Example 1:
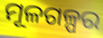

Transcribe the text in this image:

ମୂଳଗଳ୍ପର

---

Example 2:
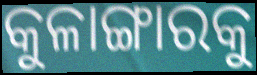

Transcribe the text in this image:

କୁଳାଙ୍ଗାରକୁ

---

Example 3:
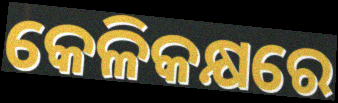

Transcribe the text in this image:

କେଳିକକ୍ଷରେ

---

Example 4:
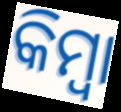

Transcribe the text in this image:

କିମ୍ଵା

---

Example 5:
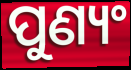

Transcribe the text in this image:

ପୁଣ୍ୟଂ